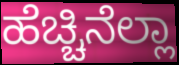
ಹೆಚ್ಚಿನೆಲ್ಲಾ